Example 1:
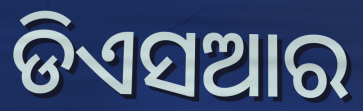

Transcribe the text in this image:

ଡିଏସଆର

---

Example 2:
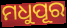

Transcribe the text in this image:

ମଧୁପୂର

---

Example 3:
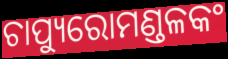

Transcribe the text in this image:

ଚାପ୍ୟୁରୋମଣ୍ଡଳକଂ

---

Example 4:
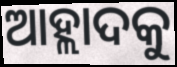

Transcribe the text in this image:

ଆହ୍ଲାଦକୁ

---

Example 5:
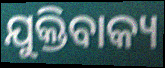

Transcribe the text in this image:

ଯୁକ୍ତିବାକ୍ୟ